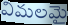
విమలమై